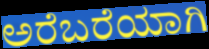
ಅರೆಬರೆಯಾಗಿ